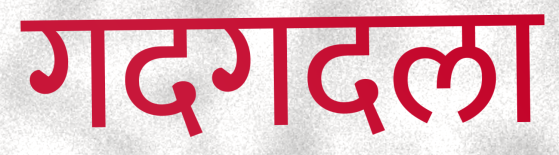
गदगदला